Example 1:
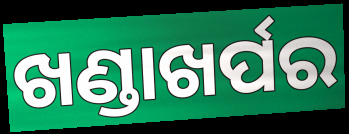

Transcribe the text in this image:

ଖଣ୍ଡାଖର୍ପର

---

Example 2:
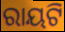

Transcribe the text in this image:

ରାୟଟି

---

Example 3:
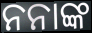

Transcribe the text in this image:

ନନାଙ୍କ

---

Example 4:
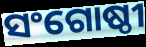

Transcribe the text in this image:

ସଂଗୋଷ୍ଠୀ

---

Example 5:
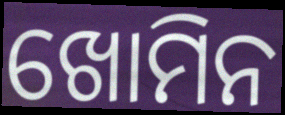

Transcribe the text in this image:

ଖୋମିନ